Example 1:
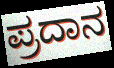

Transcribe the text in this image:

ಪ್ರದಾನ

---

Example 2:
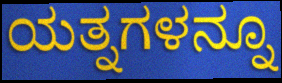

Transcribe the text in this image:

ಯತ್ನಗಳನ್ನೂ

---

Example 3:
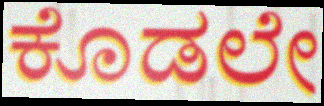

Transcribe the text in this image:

ಕೊಡಲೇ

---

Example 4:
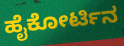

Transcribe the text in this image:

ಹೈಕೋರ್ಟಿನ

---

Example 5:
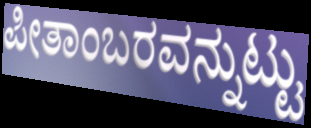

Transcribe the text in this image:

ಪೀತಾಂಬರವನ್ನುಟ್ಟು